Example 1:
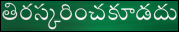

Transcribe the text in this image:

తిరస్కరించకూడదు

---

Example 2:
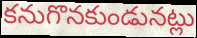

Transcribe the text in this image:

కనుగొనకుండునట్లు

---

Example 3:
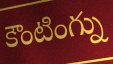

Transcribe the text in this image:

కౌంటింగ్ను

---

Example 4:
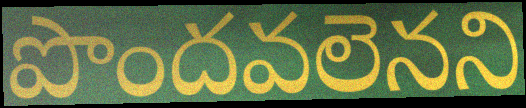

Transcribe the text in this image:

పొందవలెనని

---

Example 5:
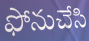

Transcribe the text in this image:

ఫోనుచేసి